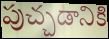
పుచ్చడానికి